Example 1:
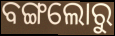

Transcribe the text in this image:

ବଙ୍ଗଲୋରୁ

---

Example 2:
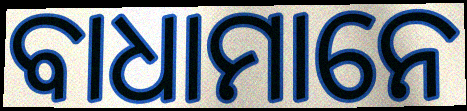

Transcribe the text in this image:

ବାଧାମାନେ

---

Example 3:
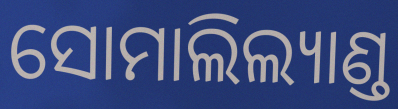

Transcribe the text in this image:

ସୋମାଲିଲ୍ୟାଣ୍ଡ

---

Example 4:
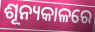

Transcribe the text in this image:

ଶୂନ୍ୟକାଳରେ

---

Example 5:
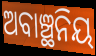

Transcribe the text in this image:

ଅବାଞ୍ଛନିୟ